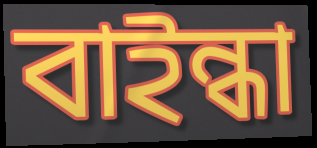
বাইন্ধা